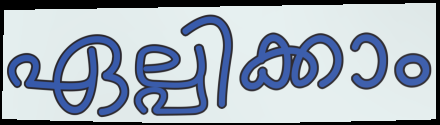
ഏല്പിക്കാം